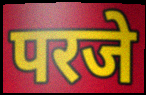
परजे